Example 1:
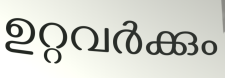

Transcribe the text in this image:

ഉറ്റവർക്കും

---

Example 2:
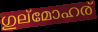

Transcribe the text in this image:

ഗുല്മോഹര്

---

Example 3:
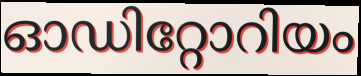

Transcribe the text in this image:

ഓഡിറ്റോറിയം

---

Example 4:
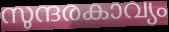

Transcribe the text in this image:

സുന്ദരകാവ്യം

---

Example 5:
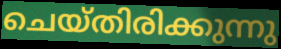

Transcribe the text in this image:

ചെയ്തിരിക്കുന്നു